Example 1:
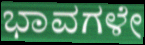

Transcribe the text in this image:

ಭಾವಗಳೇ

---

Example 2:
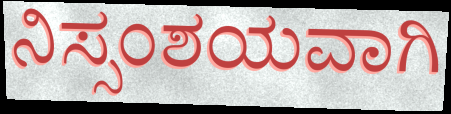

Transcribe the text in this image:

ನಿಸ್ಸಂಶಯವಾಗಿ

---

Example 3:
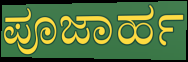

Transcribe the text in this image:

ಪೂಜಾರ್ಹ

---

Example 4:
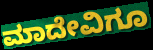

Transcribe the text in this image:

ಮಾದೇವಿಗೂ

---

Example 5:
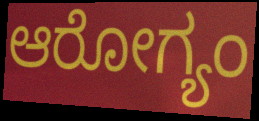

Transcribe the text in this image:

ಆರೋಗ್ಯಂ